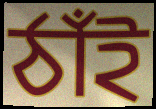
ঠাঁই